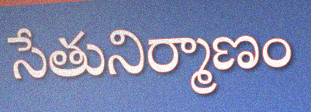
సేతునిర్మాణం